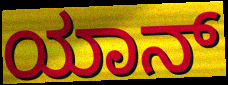
ಯಾನ್